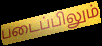
படைப்பிலும்